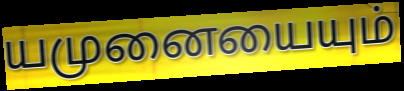
யமுனையையும்